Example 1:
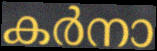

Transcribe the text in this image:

കർനാ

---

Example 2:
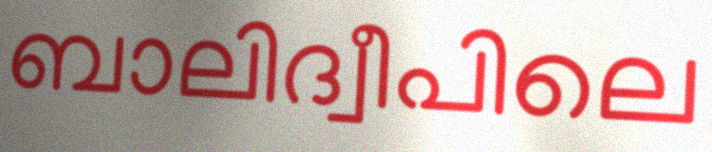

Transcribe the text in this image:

ബാലിദ്വീപിലെ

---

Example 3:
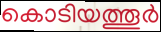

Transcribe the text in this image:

കൊടിയത്തൂർ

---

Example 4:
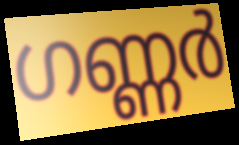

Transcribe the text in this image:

ഗണ്ണർ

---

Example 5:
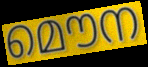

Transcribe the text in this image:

മൌന